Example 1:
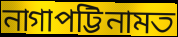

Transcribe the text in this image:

নাগাপট্টিনামত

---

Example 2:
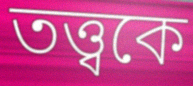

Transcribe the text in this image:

তত্ত্বকে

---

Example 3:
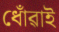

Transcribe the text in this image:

ধোঁৱাই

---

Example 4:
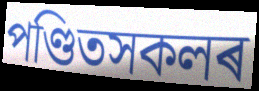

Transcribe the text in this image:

পণ্ডিতসকলৰ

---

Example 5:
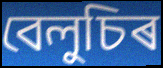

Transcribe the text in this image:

বেলুচিৰ